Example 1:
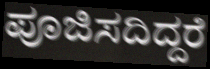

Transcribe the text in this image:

ಪೂಜಿಸದಿದ್ದರೆ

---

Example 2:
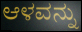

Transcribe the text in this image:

ಆಳವನ್ನು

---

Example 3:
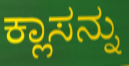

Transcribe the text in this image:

ಕ್ಲಾಸನ್ನು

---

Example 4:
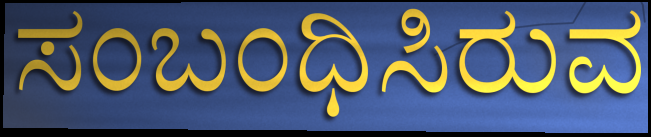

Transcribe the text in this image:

ಸಂಬಂಧಿಸಿರುವ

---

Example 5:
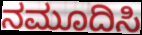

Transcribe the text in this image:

ನಮೂದಿಸಿ